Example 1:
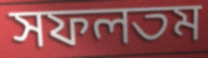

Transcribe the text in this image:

সফলতম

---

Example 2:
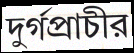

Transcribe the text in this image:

দুর্গপ্রাচীর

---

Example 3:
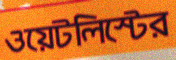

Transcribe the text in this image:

ওয়েটলিস্টের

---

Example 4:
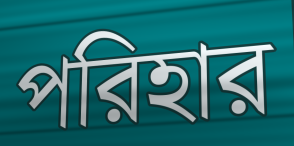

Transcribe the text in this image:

পরিহার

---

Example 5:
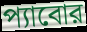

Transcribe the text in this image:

প্যাবোর